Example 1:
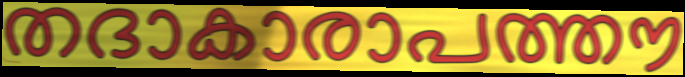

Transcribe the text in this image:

തദാകാരാപത്തൗ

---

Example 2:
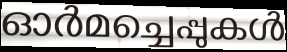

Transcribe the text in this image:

ഓർമച്ചെപ്പുകൾ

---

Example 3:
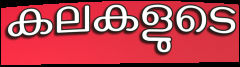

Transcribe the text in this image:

കലകളുടെ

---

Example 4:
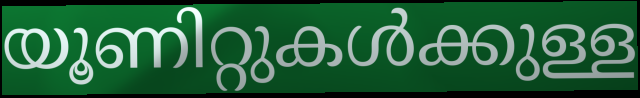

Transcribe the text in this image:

യൂണിറ്റുകൾക്കുള്ള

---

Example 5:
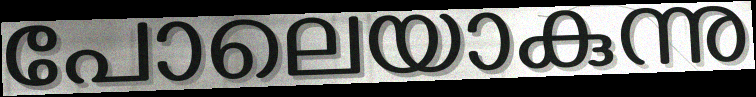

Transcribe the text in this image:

പോലെയാകുന്നു